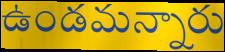
ఉండమన్నారు